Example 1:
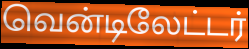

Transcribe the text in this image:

வென்டிலேட்டர்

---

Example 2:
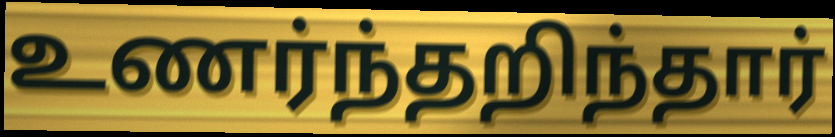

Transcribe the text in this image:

உணர்ந்தறிந்தார்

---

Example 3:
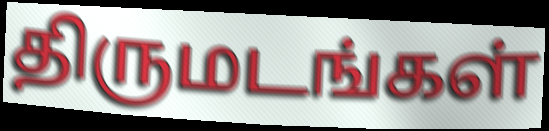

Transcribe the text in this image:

திருமடங்கள்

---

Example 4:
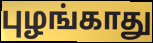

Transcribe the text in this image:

புழங்காது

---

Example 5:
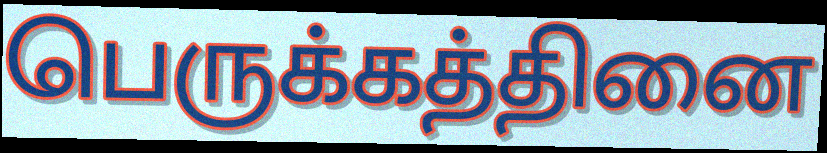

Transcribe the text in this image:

பெருக்கத்தினை